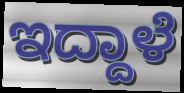
ಇದ್ದಾಳೆ